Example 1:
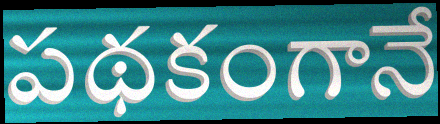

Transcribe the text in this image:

పథకంగానే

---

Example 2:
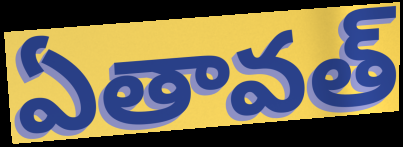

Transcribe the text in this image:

ఏతావత్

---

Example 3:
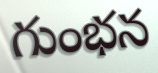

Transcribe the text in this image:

గుంభన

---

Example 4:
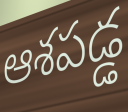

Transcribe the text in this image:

ఆశపడ్డ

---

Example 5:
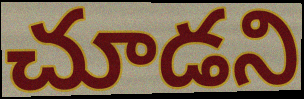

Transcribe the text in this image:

చూడని